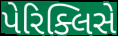
પેરિક્લિસે